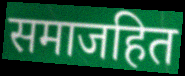
समाजहित